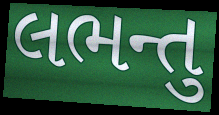
લભન્તુ